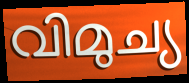
വിമുച്യ